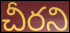
చీరని